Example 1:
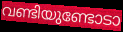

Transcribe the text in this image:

വണ്ടിയുണ്ടോടാ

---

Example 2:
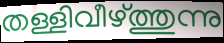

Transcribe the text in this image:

തള്ളിവീഴ്ത്തുന്നു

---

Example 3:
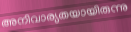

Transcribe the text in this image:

അനിവാര്യതയായിരുന്നു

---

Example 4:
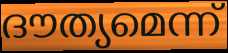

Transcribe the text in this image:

ദൗത്യമെന്ന്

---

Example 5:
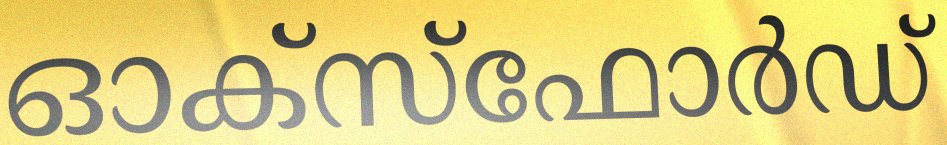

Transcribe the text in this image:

ഓക്സ്ഫോർഡ്